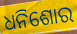
ଧନିଶୋର